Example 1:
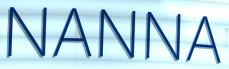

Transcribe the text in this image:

NANNA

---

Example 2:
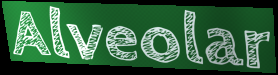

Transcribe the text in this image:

Alveolar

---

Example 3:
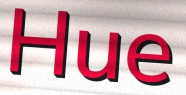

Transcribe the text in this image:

Hue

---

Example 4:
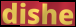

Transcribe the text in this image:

dishe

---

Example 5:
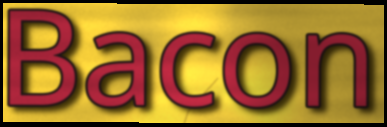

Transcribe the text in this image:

Bacon